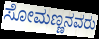
ಸೋಮಣ್ಣನವರು